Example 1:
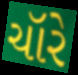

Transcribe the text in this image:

ચૉરે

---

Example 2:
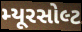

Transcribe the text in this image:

મ્યૂરસોલ્ટ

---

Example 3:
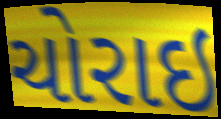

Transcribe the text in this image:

ચોરાઇ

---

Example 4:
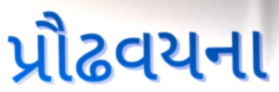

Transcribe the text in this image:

પ્રૌઢવયના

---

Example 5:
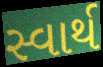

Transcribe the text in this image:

સ્વાર્થ